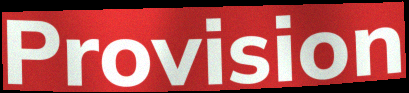
Provision